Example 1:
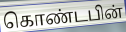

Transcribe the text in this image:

கொண்டபின்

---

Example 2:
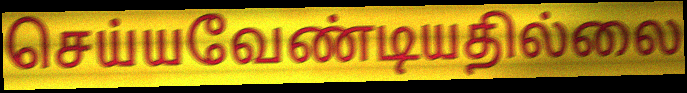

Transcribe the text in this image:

செய்யவேண்டியதில்லை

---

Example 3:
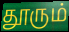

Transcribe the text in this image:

தூரும்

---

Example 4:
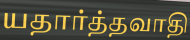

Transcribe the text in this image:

யதார்த்தவாதி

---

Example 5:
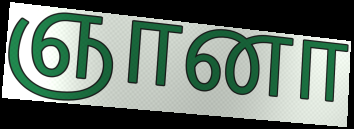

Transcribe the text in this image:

ஞானா